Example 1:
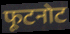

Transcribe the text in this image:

फूटनोट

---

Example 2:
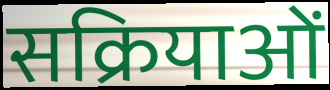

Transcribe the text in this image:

सक्रियाओं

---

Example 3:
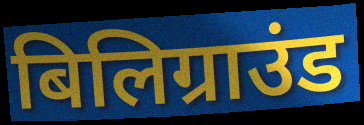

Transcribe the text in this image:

बिलिग्राउंड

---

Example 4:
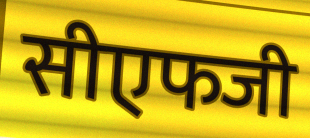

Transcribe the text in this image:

सीएफजी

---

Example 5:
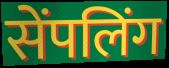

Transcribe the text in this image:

सेंपलिंग